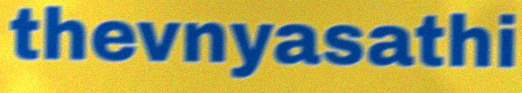
thevnyasathi